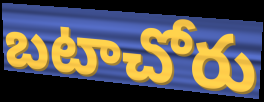
బటాచోరు